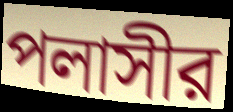
পলাসীর